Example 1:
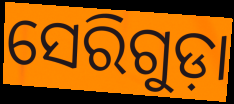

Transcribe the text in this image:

ସେରିଗୁଡ଼ା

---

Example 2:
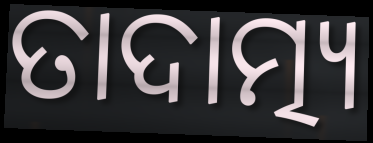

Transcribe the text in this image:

ତାଦାତ୍ମ୍ୟ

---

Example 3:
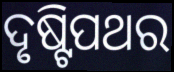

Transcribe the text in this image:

ଦୃଷ୍ଟିପଥର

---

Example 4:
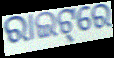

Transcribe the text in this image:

ରାଇଟ୍‌ରେ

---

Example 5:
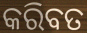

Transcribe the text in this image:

କରିବତ